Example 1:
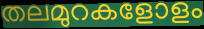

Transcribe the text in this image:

തലമുറകളോളം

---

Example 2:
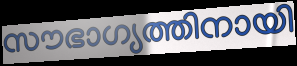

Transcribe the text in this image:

സൗഭാഗ്യത്തിനായി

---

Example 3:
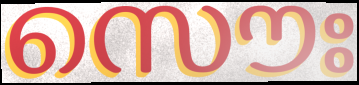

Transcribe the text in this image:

സൌഃ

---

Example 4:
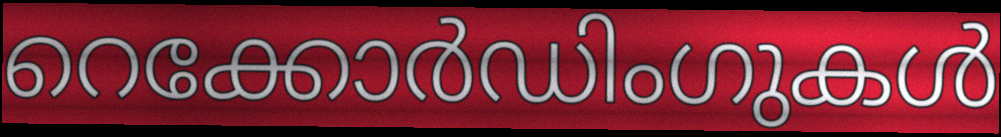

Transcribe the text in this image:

റെക്കോർഡിംഗുകൾ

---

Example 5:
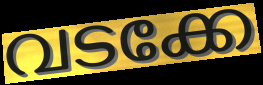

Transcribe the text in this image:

വടക്കേ